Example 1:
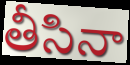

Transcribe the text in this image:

తీసినా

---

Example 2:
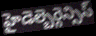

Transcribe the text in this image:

హైడెల్బెర్గెన్సిస్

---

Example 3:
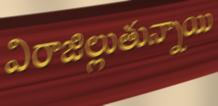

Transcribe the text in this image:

విరాజిల్లుతున్నాయి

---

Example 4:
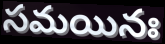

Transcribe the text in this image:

సమయినః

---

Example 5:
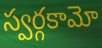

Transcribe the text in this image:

స్వర్గకామో